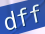
dff